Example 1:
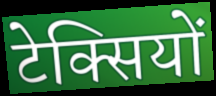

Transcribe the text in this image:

टेक्सियों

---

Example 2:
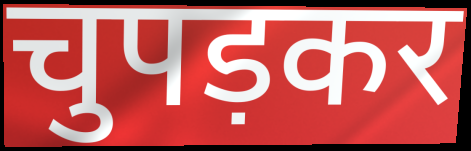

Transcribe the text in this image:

चुपड़कर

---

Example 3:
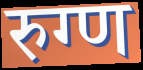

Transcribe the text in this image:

रुग्ण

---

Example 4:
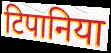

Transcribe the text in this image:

टिपानिया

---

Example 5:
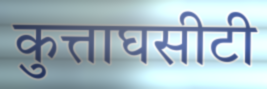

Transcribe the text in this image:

कुत्ताघसीटी